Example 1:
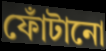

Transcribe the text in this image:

ফোঁটানো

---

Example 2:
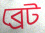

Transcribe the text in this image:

ব্রেট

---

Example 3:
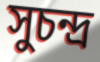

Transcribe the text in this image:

সুচন্দ্র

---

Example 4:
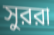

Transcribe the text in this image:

সুররা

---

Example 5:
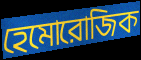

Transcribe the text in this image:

হেমোরোজিক